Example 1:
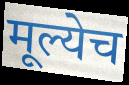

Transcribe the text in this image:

मूल्येच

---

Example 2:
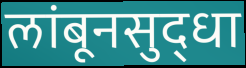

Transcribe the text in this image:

लांबूनसुद्धा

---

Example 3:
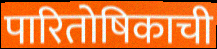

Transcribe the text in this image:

पारितोषिकाची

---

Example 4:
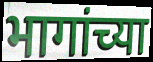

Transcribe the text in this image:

भागांच्या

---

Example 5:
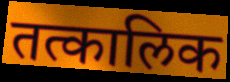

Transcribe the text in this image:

तत्कालिक